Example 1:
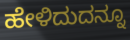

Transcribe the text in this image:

ಹೇಳಿದುದನ್ನೂ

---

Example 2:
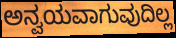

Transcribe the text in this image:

ಅನ್ವಯವಾಗುವುದಿಲ್ಲ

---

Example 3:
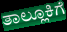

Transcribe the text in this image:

ತಾಲ್ಲೂಕಿಗೆ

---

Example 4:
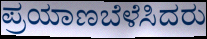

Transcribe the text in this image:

ಪ್ರಯಾಣಬೆಳೆಸಿದರು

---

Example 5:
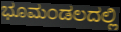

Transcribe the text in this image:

ಭೂಮಂಡಲದಲ್ಲಿ